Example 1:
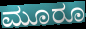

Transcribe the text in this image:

ಮೂರೂ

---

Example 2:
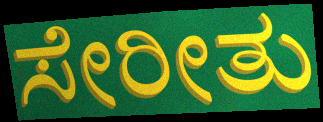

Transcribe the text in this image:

ಸೇರೀತು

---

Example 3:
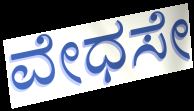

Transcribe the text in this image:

ವೇಧಸೇ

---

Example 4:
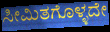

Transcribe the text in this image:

ಸೀಮಿತಗೊಳ್ಳದೇ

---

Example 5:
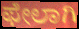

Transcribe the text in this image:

ಫೇಲಾಗಿ